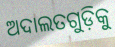
ଅଦାଲତଗୁଡ଼ିକୁ